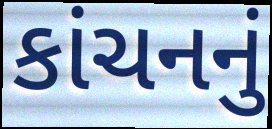
કાંચનનું